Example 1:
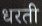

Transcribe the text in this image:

धरती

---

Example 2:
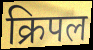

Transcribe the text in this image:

क्रिपल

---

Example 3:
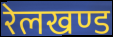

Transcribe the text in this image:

रेलखण्ड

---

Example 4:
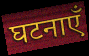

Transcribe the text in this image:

घटनाएँ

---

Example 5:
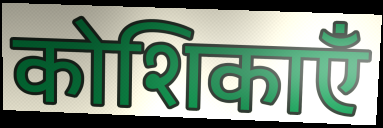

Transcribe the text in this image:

कोशिकाएँ